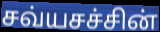
சவ்யசச்சின்